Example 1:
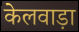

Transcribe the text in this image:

केलवाड़ा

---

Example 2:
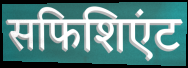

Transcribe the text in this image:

सफिशिएंट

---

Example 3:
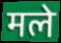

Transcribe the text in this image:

मले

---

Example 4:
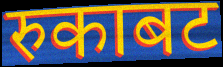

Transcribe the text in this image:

रुकाबट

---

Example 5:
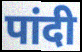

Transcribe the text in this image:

पांदी